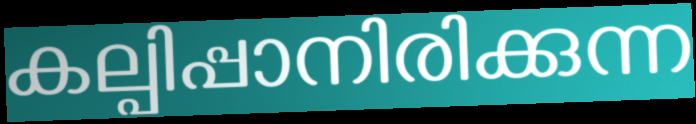
കല്പിപ്പാനിരിക്കുന്ന